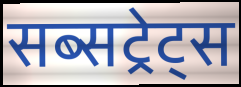
सब्सट्रेट्स